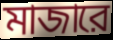
মাজারে